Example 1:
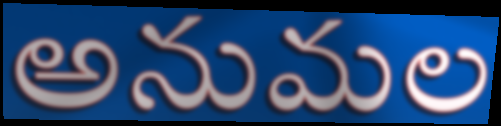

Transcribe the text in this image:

అనుమల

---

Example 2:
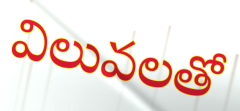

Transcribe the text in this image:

విలువలతో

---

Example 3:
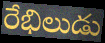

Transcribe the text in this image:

రేభిలుడు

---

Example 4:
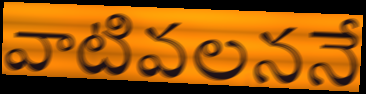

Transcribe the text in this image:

వాటివలననే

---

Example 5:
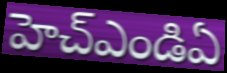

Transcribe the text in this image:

హెచ్ఎండిఏ